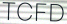
TCFD